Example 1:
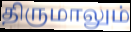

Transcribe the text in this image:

திருமாலும்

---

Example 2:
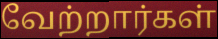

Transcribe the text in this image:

வேற்றார்கள்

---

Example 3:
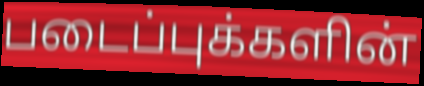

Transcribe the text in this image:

படைப்புக்களின்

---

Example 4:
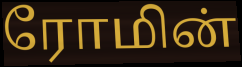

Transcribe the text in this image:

ரோமின்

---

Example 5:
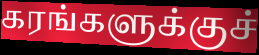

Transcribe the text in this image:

கரங்களுக்குச்